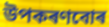
উপকৰণবোৰ